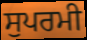
ਸੁਪਰਮੀ